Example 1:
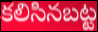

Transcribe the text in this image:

కలిసినబట్ట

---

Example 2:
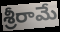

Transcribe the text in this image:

శ్రీరామే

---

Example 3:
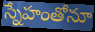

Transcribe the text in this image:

స్నేహంతోనూ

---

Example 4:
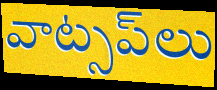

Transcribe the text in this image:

వాట్సప్‌లు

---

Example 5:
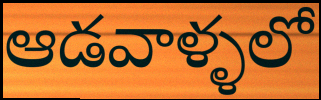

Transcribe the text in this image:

ఆడవాళ్ళలో